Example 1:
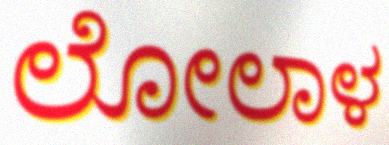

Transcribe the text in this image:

ಲೋಲಾಳ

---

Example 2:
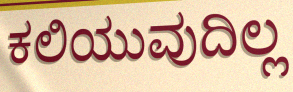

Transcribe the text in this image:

ಕಲಿಯುವುದಿಲ್ಲ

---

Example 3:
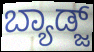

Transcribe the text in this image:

ಬ್ಯಾಡ್ಜ್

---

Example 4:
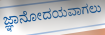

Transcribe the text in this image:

ಜ್ಞಾನೋದಯವಾಗಲು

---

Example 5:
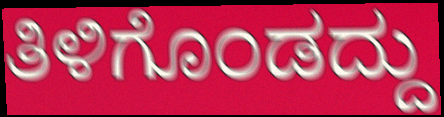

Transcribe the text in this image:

ತಿಳಿಗೊಂಡದ್ದು